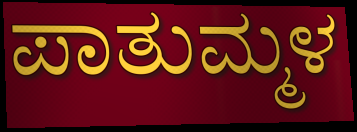
ಪಾತುಮ್ಮಳ